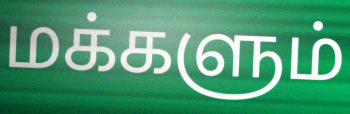
மக்களும்